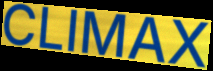
CLIMAX